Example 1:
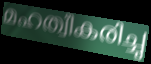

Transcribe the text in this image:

മഹത്വീകരിച്ചു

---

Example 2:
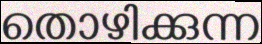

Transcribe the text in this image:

തൊഴിക്കുന്ന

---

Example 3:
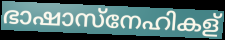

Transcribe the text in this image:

ഭാഷാസ്നേഹികള്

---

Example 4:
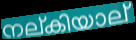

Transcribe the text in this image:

നല്കിയാല്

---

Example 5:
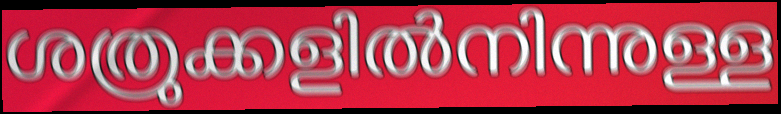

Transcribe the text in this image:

ശത്രുക്കളിൽനിന്നുള്ള